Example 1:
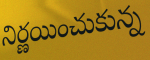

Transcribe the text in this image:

నిర్ణయించుకున్న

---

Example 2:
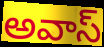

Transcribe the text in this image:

అవాస్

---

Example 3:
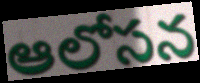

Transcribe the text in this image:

ఆలోసన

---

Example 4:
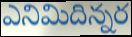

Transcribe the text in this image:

ఎనిమిదిన్నర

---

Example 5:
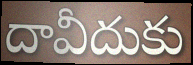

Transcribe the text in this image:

దావీదుకు